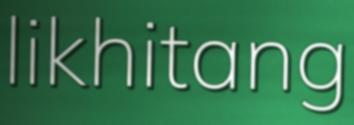
likhitang